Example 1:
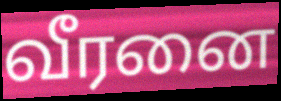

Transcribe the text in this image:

வீரனை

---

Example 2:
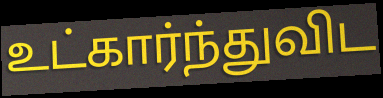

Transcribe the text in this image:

உட்கார்ந்துவிட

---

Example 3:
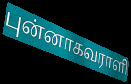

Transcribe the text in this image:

புன்னாகவராளி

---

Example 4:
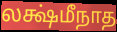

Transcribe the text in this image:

லக்ஷ்மீநாத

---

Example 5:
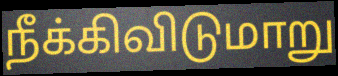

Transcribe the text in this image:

நீக்கிவிடுமாறு